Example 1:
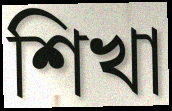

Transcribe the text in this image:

শিখা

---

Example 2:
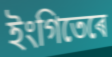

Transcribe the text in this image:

ইংগিতেৰে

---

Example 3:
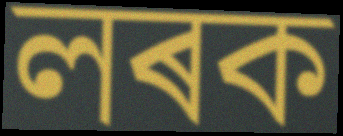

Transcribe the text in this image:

লৰক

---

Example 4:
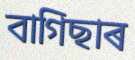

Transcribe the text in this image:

বাগিছাৰ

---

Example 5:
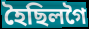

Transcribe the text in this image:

হৈছিলগৈ